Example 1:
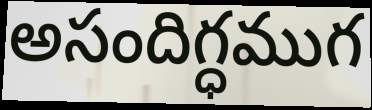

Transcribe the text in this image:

అసందిగ్ధముగ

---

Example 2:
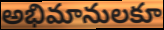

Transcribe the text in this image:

అభిమానులకూ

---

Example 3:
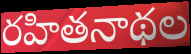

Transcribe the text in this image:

రహితనాథల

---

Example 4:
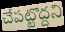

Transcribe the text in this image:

చేపట్టొద్దని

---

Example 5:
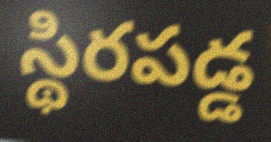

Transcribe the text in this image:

స్థిరపడ్డ